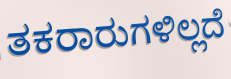
ತಕರಾರುಗಳಿಲ್ಲದೆ